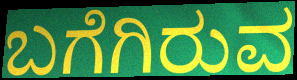
ಬಗೆಗಿರುವ